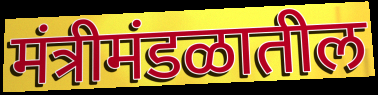
मंत्रीमंडळातील